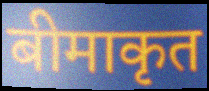
बीमाकृत